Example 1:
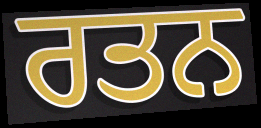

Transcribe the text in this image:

ਰਤਨ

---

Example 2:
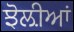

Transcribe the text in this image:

ਝੋਲ਼ੀਆਂ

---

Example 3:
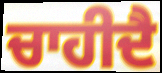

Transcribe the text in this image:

ਚਾਹੀਦੈ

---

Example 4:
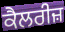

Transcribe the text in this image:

ਕੈਲਰੀਜ਼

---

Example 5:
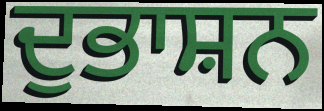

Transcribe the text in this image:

ਦੁਭਾਸ਼ਨ